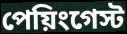
পেয়িংগেস্ট